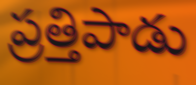
ప్రత్తిపాడు